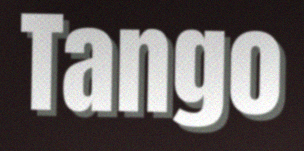
Tango